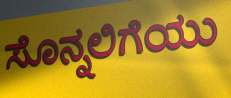
ಸೊನ್ನಲಿಗೆಯು